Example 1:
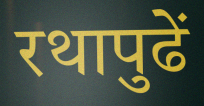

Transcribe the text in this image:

रथापुढें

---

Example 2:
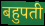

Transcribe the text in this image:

बहुपती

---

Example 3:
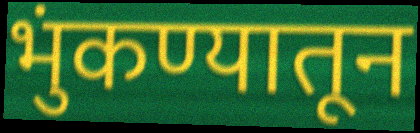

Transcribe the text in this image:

भुंकण्यातून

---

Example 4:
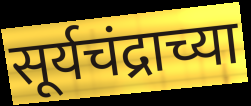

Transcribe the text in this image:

सूर्यचंद्राच्या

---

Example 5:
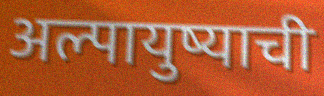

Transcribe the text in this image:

अल्पायुष्याची